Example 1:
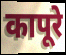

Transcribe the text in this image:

कापूरे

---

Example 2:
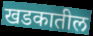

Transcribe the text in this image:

खडकातील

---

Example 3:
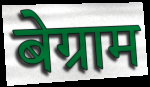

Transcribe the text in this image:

बेग्राम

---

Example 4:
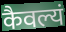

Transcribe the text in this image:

कैवल्यं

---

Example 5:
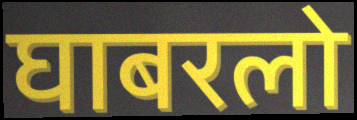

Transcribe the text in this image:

घाबरलो